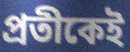
প্রতীকেই